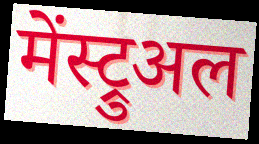
मेंस्ट्रुअल